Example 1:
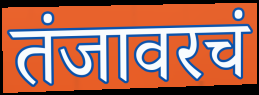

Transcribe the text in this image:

तंजावरचं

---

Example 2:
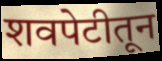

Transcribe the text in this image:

शवपेटीतून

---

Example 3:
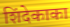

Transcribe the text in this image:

शिंदेकाका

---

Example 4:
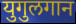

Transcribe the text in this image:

युगुलगान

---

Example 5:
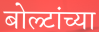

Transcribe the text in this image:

बोल्टांच्या